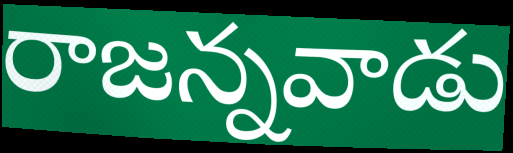
రాజన్నవాడు